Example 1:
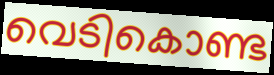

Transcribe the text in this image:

വെടികൊണ്ട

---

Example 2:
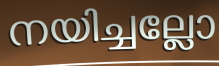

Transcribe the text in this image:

നയിച്ചല്ലോ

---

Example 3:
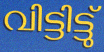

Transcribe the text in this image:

വിട്ടിട്ടു്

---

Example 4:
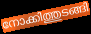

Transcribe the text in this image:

നോക്കിത്തുടങ്ങി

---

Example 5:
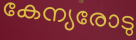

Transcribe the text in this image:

കേന്യരോടു